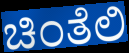
ಚಿಂತೆಲಿ